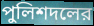
পুলিশদলের